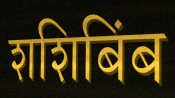
शशिबिंब